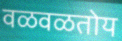
वळवळतोय